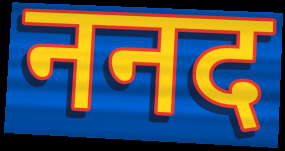
ननद